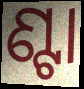
ଣ୍ଟା